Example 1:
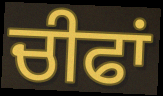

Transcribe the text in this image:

ਚੀਫਾਂ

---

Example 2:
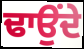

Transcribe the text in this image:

ਢਾਉਂਦੇ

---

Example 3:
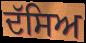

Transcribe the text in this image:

ਦੱਸਿਅ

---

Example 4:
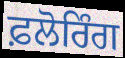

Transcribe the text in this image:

ਫ਼ਲੋਰਿੰਗ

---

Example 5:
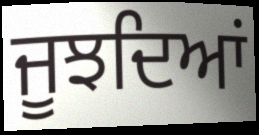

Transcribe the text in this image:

ਜੂਝਦਿਆਂ